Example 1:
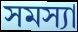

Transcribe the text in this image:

সমস্যা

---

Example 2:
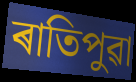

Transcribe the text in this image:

ৰাতিপুৱা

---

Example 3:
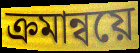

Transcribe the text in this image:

ক্ৰমান্বয়ে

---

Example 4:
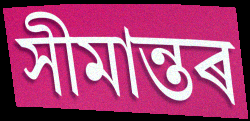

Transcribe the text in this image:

সীমান্তৰ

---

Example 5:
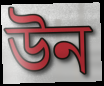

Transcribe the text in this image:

উন